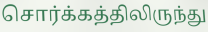
சொர்க்கத்திலிருந்து